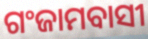
ଗଂଜାମବାସୀ